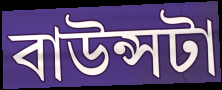
বাউন্সটা